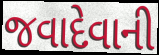
જવાદેવાની